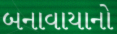
બનાવાયાનો